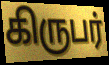
கிருபர்